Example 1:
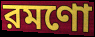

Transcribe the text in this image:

রমণো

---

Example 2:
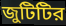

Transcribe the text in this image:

জুটিটির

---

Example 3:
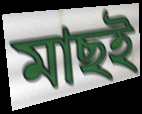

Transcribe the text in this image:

মাছই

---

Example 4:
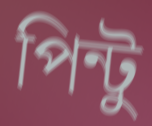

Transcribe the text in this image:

পিন্টু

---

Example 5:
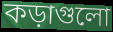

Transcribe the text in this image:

কড়াগুলো